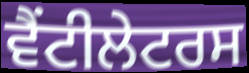
ਵੈਂਟੀਲੇਟਰਸ